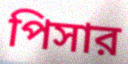
পিসার